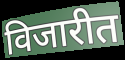
विजारीत